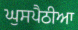
ਘੁਸਪੈਠੀਆ